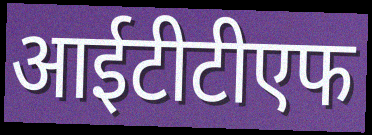
आईटीटीएफ